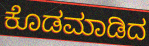
ಕೊಡಮಾಡಿದ